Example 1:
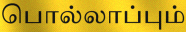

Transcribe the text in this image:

பொல்லாப்பும்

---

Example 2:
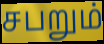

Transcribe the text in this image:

சபறும்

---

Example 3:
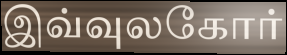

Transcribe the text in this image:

இவ்வுலகோர்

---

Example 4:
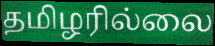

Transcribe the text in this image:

தமிழரில்லை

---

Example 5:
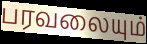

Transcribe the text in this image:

பரவலையும்